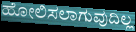
ಹೋಲಿಸಲಾಗುವುದಿಲ್ಲ